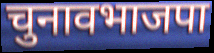
चुनावभाजपा